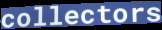
collectors